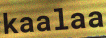
kaalaa